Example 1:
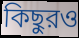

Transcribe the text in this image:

কিছুরও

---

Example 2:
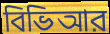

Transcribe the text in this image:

বিভিআর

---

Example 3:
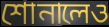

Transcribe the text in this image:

শোনালেও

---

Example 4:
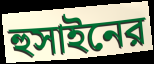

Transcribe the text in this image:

হুসাইনের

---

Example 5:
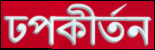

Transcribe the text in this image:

ঢপকীর্তন